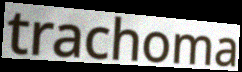
trachoma